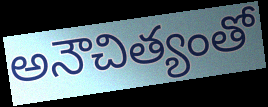
అనౌచిత్యంతో